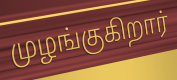
முழங்குகிறார்